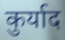
कुर्याद